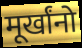
मूर्खांनो